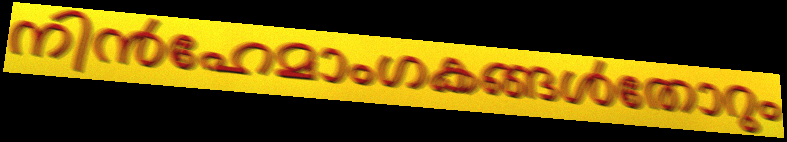
നിൻഹേമാംഗകങ്ങൾതോറും